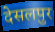
देसलपुर